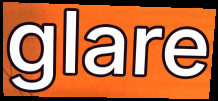
glare